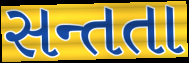
સન્તતા